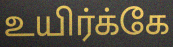
உயிர்க்கே